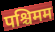
पश्चिमम